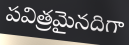
పవిత్రమైనదిగా